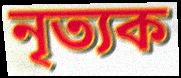
নৃত্যক